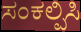
ಸಂಕಲ್ಪಿಸಿ